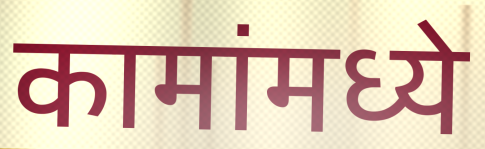
कामांमध्ये